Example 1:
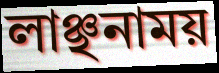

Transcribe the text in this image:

লাঞ্ছনাময়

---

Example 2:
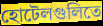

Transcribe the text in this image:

হোটেলগুলিতে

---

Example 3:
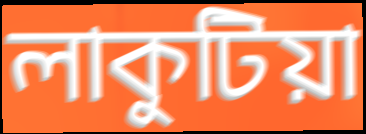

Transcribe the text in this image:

লাকুটিয়া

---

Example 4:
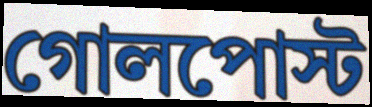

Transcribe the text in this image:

গোলপোস্ট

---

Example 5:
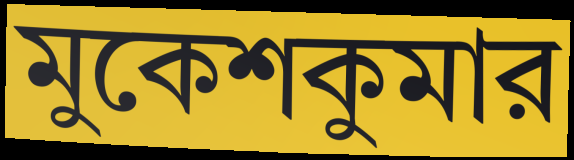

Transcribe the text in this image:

মুকেশকুমার